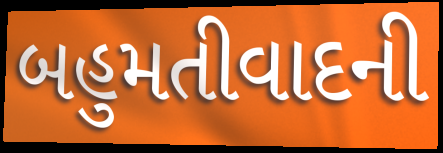
બહુમતીવાદની